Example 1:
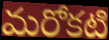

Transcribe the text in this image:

మరోకటి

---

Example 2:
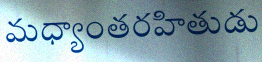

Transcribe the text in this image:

మధ్యాంతరహితుడు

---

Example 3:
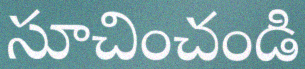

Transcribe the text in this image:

సూచించండి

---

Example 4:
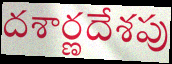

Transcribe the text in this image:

దశార్ణదేశపు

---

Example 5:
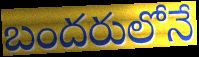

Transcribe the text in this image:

బందరులోనే